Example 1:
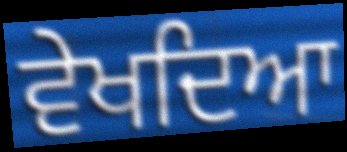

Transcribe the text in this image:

ਵੇਖਦਿਆ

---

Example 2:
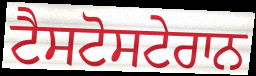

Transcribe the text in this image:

ਟੈਸਟੋਸਟੇਰਾਨ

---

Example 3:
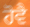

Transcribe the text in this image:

ਹੋਵੈ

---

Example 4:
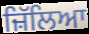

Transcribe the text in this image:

ਜ਼ਿੱਲਿਆ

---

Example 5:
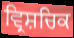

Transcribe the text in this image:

ਵ੍ਰਿਸ਼ਚਿਕ